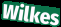
Wilkes